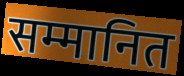
सम्मानित